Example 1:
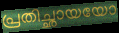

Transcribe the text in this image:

പ്രതിച്ഛായയോ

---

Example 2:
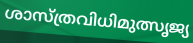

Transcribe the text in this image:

ശാസ്ത്രവിധിമുത്സൃജ്യ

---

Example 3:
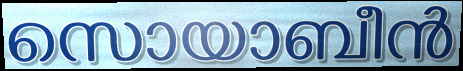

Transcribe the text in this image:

സൊയാബീൻ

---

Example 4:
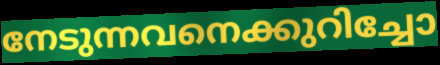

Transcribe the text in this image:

നേടുന്നവനെക്കുറിച്ചോ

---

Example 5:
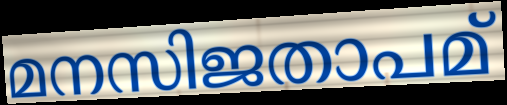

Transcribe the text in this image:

മനസിജതാപമ്